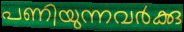
പണിയുന്നവർക്കു